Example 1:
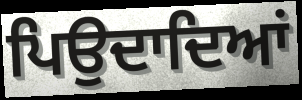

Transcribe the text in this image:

ਪਿਉਦਾਦਿਆਂ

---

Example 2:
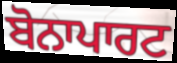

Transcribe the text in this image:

ਬੋਨਾਪਾਰਟ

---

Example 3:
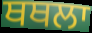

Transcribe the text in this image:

ਥਥਲਾ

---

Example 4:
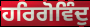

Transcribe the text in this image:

ਹਰਿਗੋਵਿੰਦੁ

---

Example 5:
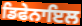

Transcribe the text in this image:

ਡਿਫੇਨਾਇਲ